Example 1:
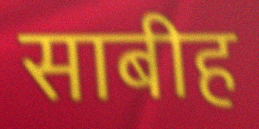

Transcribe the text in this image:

साबीह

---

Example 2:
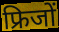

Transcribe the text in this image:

फ्रिजों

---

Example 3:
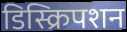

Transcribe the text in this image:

डिस्क्रिपशन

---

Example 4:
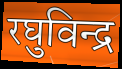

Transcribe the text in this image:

रघुविन्द्र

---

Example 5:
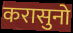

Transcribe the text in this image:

करासुनो